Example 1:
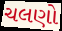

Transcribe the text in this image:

ચલણો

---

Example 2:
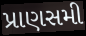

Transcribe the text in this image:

પ્રાણસમી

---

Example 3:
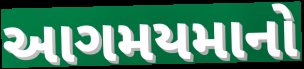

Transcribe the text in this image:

આગમયમાનો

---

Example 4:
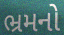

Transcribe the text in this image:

ભ્રમનો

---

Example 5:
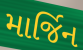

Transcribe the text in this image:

માર્જિન